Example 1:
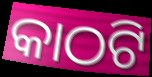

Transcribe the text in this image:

କାଠଟି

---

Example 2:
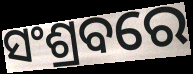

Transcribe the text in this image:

ସଂଶ୍ରବରେ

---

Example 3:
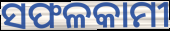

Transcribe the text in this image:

ସଫଳକାମୀ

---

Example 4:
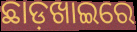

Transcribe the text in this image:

ଛାଡ଼ଖାଇରେ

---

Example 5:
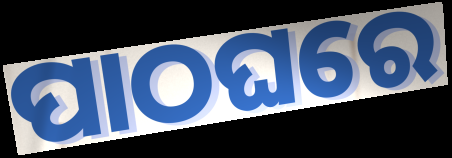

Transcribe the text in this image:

ପାଠଘରେ